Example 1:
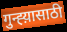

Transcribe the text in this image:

गुन्ह्य़ासाठी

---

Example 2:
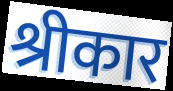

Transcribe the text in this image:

श्रीकार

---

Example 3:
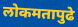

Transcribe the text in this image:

लोकमतापुढे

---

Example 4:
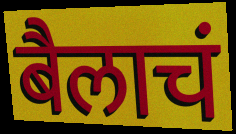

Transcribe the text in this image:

बैलाचं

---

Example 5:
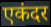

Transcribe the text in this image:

एकंदर